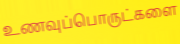
உணவுப்பொருட்களை